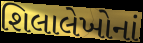
શિલાલેખોનાં